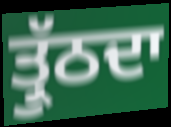
ਤ੍ਰੁੱਠਦਾ